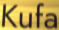
Kufa